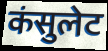
कंसुलेट